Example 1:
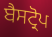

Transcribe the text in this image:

ਬੈਸਟ੍ਰੋਪ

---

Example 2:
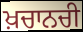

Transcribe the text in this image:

ਖ਼ਚਾਨਚੀ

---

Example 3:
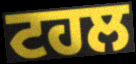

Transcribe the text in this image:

ਟਹਲ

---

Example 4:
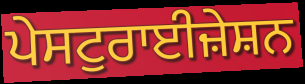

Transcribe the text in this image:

ਪੇਸਟੁਰਾਈਜ਼ੇਸ਼ਨ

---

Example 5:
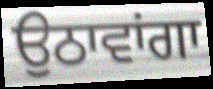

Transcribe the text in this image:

ਉਠਾਵਾਂਗਾ